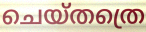
ചെയ്തത്രെ